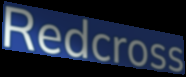
Redcross